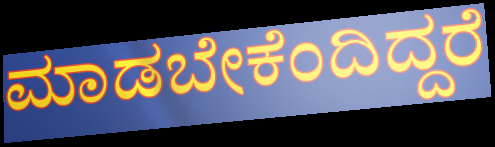
ಮಾಡಬೇಕೆಂದಿದ್ದರೆ